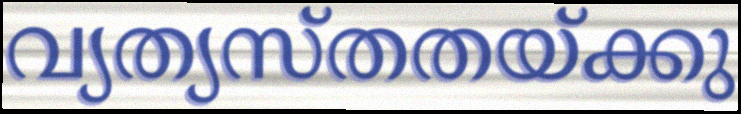
വ്യത്യസ്തതയ്ക്കു